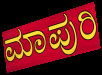
ಮಾಪುರಿ